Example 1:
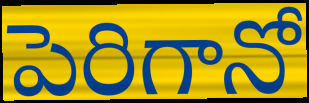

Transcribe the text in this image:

పెరిగానో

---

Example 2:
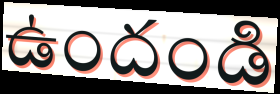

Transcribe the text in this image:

ఉందండి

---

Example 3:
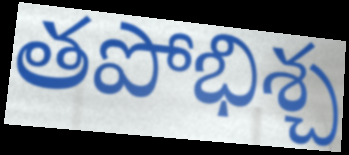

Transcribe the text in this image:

తపోభిశ్చ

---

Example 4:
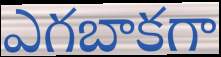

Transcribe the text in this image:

ఎగబాకగా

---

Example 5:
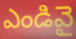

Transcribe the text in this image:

ఎండివై